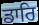
ਡਾਰਿ